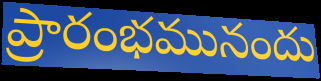
ప్రారంభమునందు